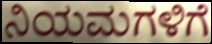
ನಿಯಮಗಳಿಗೆ